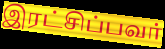
இரட்சிப்பவர்